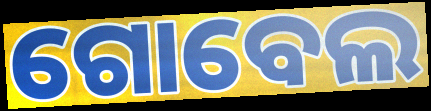
ଗୋବେଲ